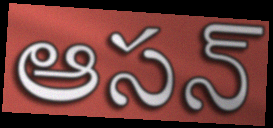
ఆసన్